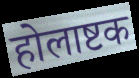
होलाष्टक